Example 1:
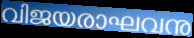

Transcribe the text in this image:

വിജയരാഘവനു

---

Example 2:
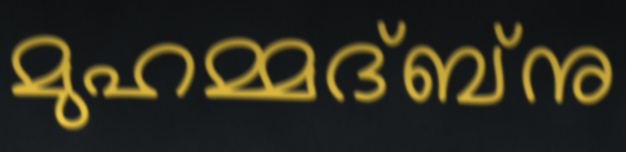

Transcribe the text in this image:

മുഹമ്മദ്ബ്നു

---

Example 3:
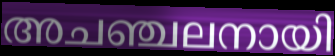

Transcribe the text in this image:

അചഞ്ചലനായി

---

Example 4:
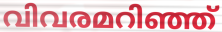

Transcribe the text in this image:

വിവരമറിഞ്ഞ്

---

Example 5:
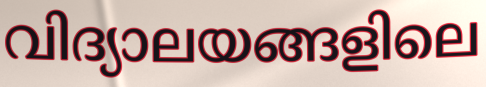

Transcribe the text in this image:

വിദ്യാലയങ്ങളിലെ